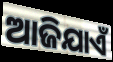
ଆଜିଯାଏଁ